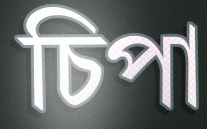
চিপা